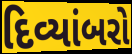
દિવ્યાંબરો